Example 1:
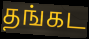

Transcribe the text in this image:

தங்கட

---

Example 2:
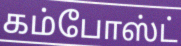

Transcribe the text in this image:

கம்போஸ்ட்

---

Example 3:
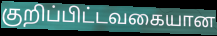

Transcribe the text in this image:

குறிப்பிட்டவகையான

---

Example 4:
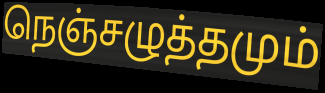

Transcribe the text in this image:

நெஞ்சழுத்தமும்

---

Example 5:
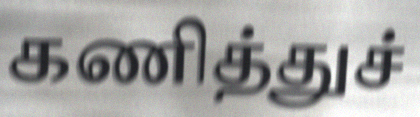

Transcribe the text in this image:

கணித்துச்